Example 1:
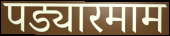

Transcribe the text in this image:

पड्यारमाम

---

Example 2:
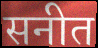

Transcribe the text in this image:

सनीत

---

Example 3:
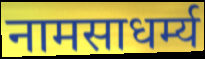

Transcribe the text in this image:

नामसाधर्म्य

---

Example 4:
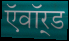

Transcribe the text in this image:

ऍवॉर्ड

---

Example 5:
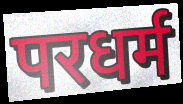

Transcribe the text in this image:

परधर्म